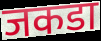
जकडा